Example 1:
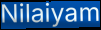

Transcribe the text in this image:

Nilaiyam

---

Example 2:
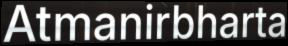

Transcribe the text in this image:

Atmanirbharta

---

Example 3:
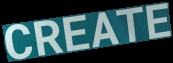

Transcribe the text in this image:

CREATE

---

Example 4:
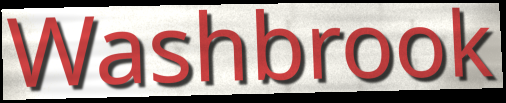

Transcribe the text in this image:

Washbrook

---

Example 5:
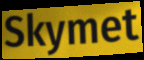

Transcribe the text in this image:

Skymet